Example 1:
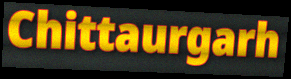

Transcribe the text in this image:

Chittaurgarh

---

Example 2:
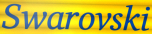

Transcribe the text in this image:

Swarovski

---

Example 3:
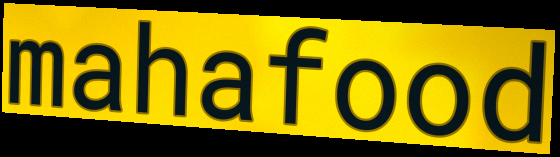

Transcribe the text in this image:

mahafood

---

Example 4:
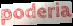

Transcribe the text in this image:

poderia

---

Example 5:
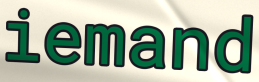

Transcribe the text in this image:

iemand